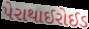
પેરાથાઈરોઈડ